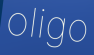
oligo